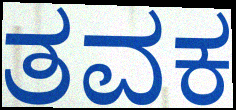
ತವಕ